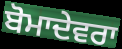
ਬੋਮਾਦੇਵਰਾ